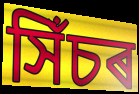
সিঁচৰ